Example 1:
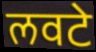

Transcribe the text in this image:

लवटे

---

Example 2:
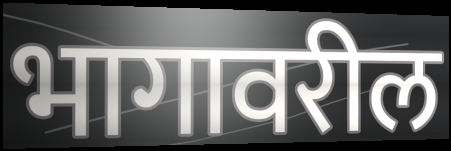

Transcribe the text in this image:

भागावरील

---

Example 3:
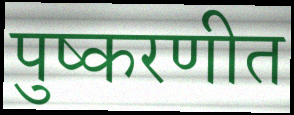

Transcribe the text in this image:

पुष्करणीत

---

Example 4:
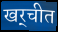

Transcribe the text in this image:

खर्चीत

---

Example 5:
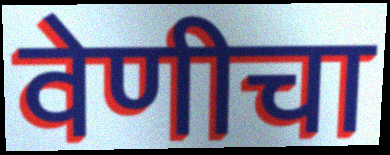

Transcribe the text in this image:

वेणीचा